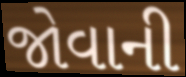
જોવાની